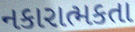
નકારાત્મકતા